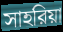
সাহরিয়া